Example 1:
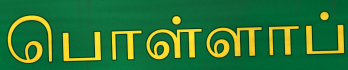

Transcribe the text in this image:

பொள்ளாப்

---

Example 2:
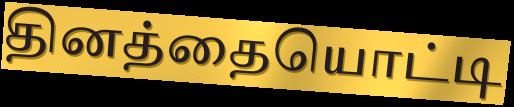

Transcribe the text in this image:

தினத்தையொட்டி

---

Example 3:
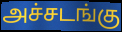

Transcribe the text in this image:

அச்சடங்கு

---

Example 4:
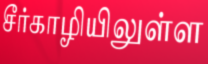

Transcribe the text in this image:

சீர்காழியிலுள்ள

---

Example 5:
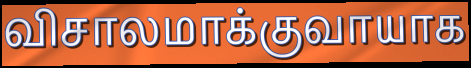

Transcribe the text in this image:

விசாலமாக்குவாயாக